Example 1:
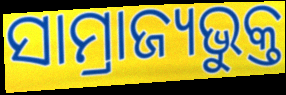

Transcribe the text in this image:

ସାମ୍ରାଜ୍ୟଭୁକ୍ତ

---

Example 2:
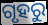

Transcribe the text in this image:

ଗୃହରୁ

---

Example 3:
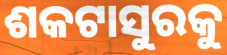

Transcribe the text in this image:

ଶକଟାସୁରକୁ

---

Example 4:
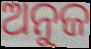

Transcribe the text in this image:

ଅନୁଜ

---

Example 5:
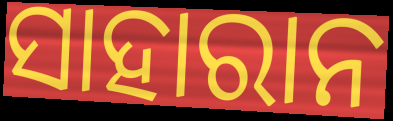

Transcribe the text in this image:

ସାହାରାନ